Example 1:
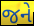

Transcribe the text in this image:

જને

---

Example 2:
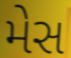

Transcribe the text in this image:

મેસ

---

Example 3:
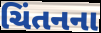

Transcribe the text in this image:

ચિંતનના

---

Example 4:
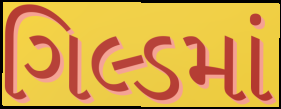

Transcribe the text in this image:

ગિલ્ડમાં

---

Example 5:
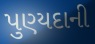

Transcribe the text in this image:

પુણ્યદાની